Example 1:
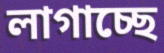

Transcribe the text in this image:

লাগাচ্ছে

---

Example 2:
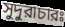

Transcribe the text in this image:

সুদুরাচারঃ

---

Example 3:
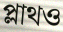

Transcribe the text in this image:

প্লাথও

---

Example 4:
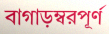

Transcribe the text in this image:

বাগাড়ম্বরপূর্ণ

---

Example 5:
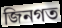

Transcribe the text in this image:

জিনগত